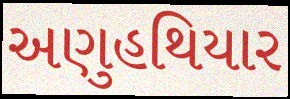
અણુહથિયાર